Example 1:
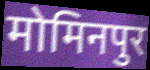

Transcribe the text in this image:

मोमिनपुर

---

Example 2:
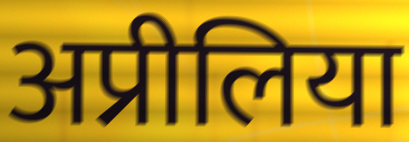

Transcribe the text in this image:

अप्रीलिया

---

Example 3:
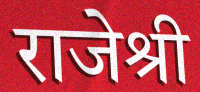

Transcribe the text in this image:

राजेश्री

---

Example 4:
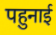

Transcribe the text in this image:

पहुनाई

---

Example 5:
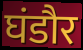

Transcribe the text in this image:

घंडौर